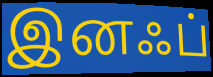
இனஃப்